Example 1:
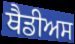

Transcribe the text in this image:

ਥੈਡੀਅਸ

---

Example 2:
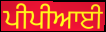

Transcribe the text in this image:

ਪੀਪੀਆਈ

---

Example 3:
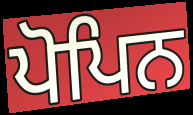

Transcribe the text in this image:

ਪੋਪਿਨ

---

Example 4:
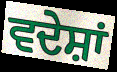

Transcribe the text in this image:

ਵਦੇਸ਼ਾਂ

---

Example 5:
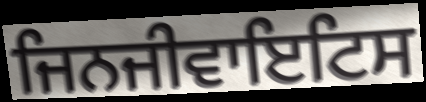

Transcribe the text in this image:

ਜਿਨਜੀਵਾਇਟਿਸ